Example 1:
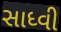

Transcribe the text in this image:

સાધ્વી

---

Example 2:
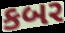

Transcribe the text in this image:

કબર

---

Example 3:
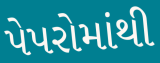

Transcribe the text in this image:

પેપરોમાંથી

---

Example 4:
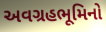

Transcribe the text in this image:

અવગ્રહભૂમિનો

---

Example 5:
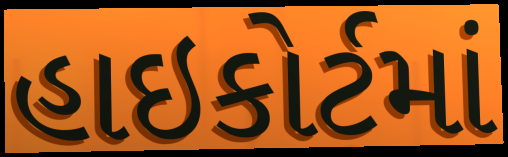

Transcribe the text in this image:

હાઇકોર્ટમાં